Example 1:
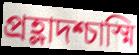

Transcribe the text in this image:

প্রহ্লাদশ্চাস্মি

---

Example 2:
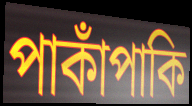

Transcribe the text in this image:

পাকাঁপাকি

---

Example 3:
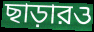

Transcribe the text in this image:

ছাড়ারও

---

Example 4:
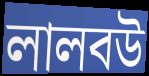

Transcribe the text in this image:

লালবউ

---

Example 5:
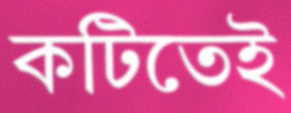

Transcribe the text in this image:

কটিতেই